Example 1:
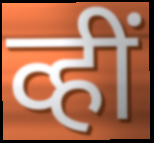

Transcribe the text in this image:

व्हीं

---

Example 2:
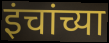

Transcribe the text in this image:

इंचांच्या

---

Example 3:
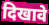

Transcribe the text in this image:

दिखावे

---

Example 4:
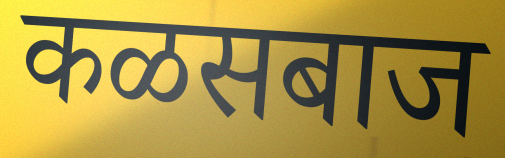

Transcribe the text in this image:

कळसबाज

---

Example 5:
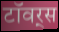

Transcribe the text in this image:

टॉवर्स